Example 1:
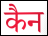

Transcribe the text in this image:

कैन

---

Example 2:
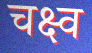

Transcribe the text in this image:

चक्ष्व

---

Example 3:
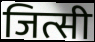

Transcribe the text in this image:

जित्सी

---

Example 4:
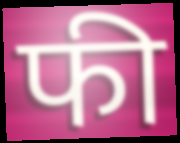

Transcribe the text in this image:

फी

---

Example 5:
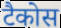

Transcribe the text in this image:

टैकोस